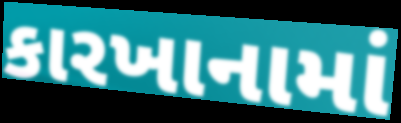
કારખાનામાં